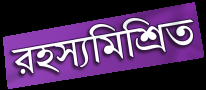
রহস্যমিশ্রিত